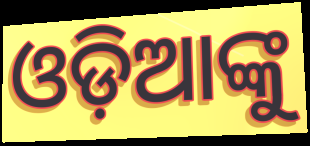
ଓଡ଼ିଆଙ୍କୁ